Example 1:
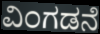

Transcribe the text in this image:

ವಿಂಗಡನೆ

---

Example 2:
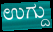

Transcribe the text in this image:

ಉಗ್ದು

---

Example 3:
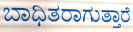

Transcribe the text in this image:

ಬಾಧಿತರಾಗುತ್ತಾರೆ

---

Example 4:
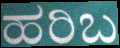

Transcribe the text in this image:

ಹರಿಬ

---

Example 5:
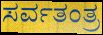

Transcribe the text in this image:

ಸರ್ವತಂತ್ರ